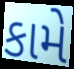
કામે